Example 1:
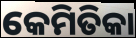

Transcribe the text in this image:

କେମିତିକା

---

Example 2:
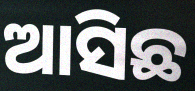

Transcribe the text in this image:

ଆସିଛ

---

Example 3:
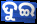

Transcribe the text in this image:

ଦୁଇ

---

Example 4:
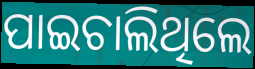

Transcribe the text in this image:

ପାଇଚାଲିଥିଲେ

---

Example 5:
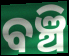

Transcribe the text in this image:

ବଞ୍ଚି